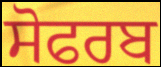
ਸੋਫਰਬ